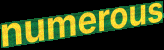
numerous